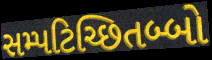
સમ્પટિચ્છિતબ્બો